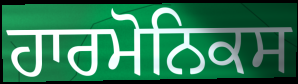
ਹਾਰਮੋਨਿਕਸ